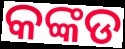
କଙ୍କଡ